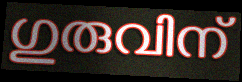
ഗുരുവിന്